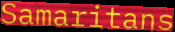
Samaritans